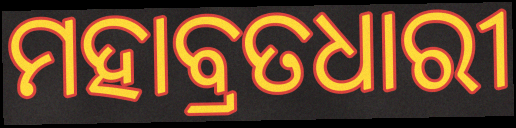
ମହାବ୍ରତଧାରୀ